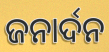
ଜନାର୍ଦନ